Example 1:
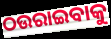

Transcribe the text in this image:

ଠଉରାଇବାକୁ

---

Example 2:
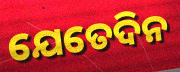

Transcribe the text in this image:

ଯେତେଦିନ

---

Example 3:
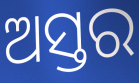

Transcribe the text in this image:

ଅସ୍ତର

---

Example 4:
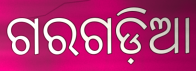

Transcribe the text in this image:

ଗରଗଡ଼ିଆ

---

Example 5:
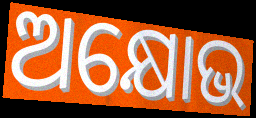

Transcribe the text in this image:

ଅକ୍ଷୋଭ